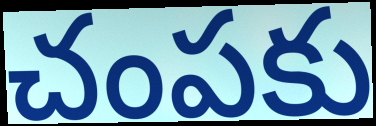
చంపకు